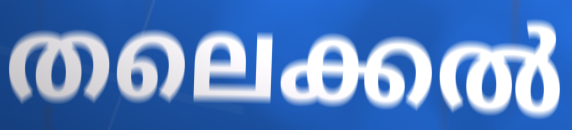
തലെക്കൽ